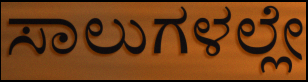
ಸಾಲುಗಳಲ್ಲೇ